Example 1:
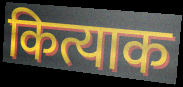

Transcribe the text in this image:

कित्याक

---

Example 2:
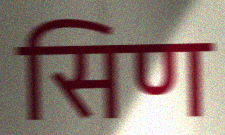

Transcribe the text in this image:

सिण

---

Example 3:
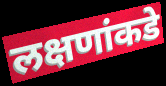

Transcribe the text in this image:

लक्षणांकडे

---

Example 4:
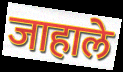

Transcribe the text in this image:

जाहाले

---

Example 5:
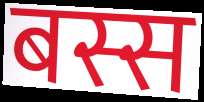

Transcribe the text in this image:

बस्स